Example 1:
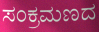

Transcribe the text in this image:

ಸಂಕ್ರಮಣದ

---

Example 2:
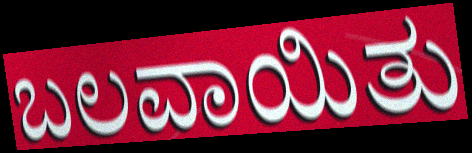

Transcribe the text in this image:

ಬಲವಾಯಿತು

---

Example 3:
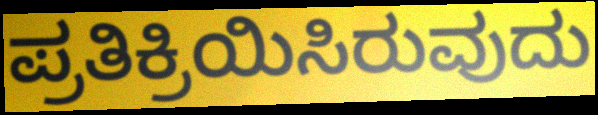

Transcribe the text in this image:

ಪ್ರತಿಕ್ರಿಯಿಸಿರುವುದು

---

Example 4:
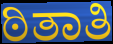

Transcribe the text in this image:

ಠಿತಾತಿ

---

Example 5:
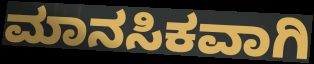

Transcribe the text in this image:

ಮಾನಸಿಕವಾಗಿ